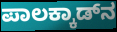
ಪಾಲಕ್ಕಾಡ್‌ನ